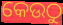
କେଉଠୁ